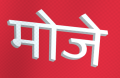
मोजे